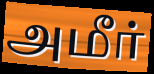
அமீர்